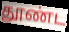
தூண்ட